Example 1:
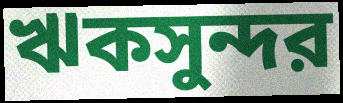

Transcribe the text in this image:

ঋকসুন্দর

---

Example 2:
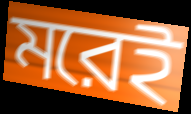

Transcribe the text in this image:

মরেই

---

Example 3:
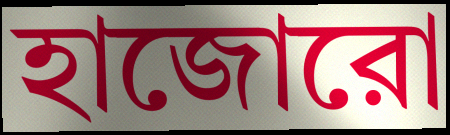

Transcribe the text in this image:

হাজোরো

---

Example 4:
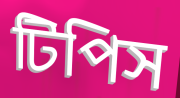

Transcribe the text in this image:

টিপিস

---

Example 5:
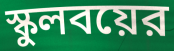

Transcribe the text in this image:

স্কুলবয়ের